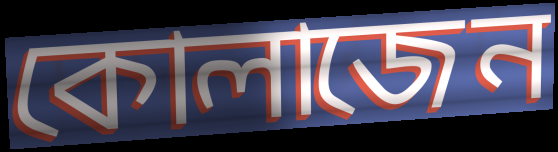
কোলাজেন